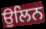
ਉਲਿਨ